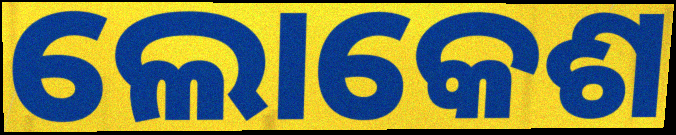
ଲୋକେଶ